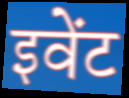
इवेंट